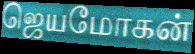
ஜெயமோகன்